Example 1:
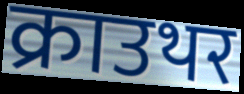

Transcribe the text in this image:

क्राउथर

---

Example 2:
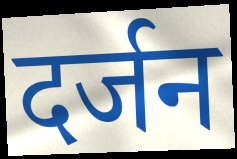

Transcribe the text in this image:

दर्जन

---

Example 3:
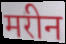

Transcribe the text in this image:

मरीन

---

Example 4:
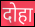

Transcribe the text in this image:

दोहा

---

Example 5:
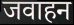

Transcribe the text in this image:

जवाहन